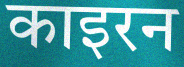
काइरन